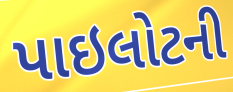
પાઇલોટની